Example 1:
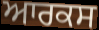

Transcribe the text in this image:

ਆਰਕਸ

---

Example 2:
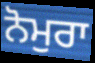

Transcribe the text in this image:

ਨੋਮੁਰਾ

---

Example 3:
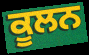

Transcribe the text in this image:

ਕੂਲਨ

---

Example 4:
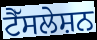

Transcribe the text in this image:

ਟੈੱਸਲੇਸ਼ਨ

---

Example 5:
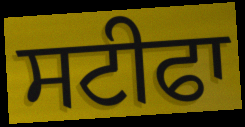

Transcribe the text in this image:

ਸਟੀਫਾ